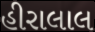
હીરાલાલ